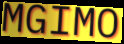
MGIMO